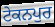
ਟੇਕਨਪੁਰ